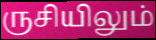
ருசியிலும்